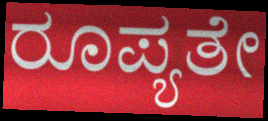
ರೂಪ್ಯತೇ